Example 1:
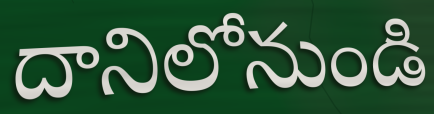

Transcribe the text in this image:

దానిలోనుండి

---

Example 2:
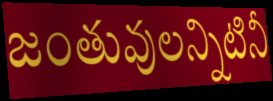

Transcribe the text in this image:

జంతువులన్నిటినీ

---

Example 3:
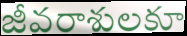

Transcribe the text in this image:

జీవరాశులకూ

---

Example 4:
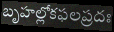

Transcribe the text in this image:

బృహల్లోకఫలప్రదః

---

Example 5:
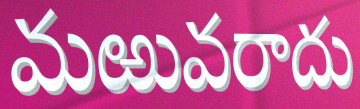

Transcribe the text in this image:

మఱువరాదు